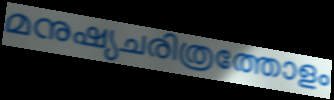
മനുഷ്യചരിത്രത്തോളം